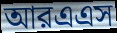
আরএএস